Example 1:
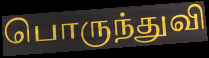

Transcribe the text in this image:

பொருந்துவி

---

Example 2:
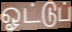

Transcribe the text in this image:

ஓட்டுப்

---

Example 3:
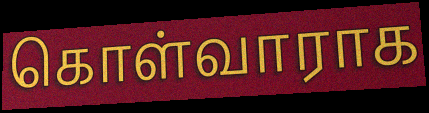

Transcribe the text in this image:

கொள்வாராக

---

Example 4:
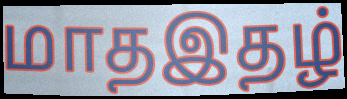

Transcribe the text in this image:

மாதஇதழ்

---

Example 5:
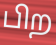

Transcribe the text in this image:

பிற